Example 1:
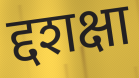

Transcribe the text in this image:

द्दशक्षा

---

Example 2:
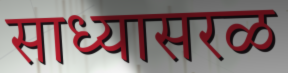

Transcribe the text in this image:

साध्यासरळ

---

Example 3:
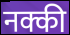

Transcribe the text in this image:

नक्की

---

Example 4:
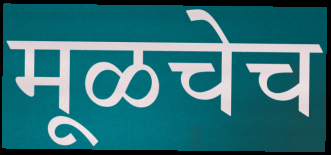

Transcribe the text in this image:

मूळचेच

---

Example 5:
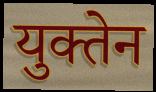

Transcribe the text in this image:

युक्तेन